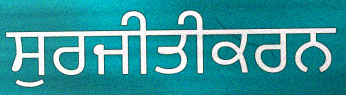
ਸੁਰਜੀਤੀਕਰਨ